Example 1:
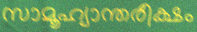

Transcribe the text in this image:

സാമൂഹ്യാന്തരീക്ഷം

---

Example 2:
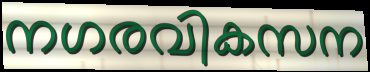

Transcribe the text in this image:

നഗരവികസന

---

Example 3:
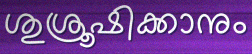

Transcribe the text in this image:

ശുശ്രൂഷിക്കാനും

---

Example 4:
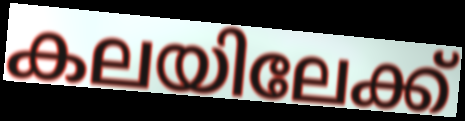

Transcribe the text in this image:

കലയിലേക്ക്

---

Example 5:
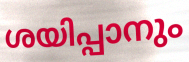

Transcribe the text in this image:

ശയിപ്പാനും